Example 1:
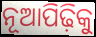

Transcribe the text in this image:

ନୂଆପିଢ଼ିକୁ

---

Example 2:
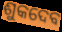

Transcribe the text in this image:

ଶୁକଦେବ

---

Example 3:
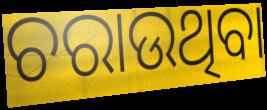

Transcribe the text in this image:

ଚରାଉଥିବା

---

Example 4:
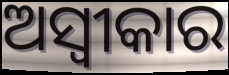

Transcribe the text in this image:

ଅସ୍ୱୀକାର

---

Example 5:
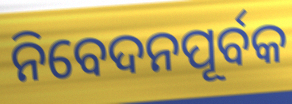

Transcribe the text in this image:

ନିବେଦନପୂର୍ବକ